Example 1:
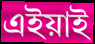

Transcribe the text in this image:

এইয়াই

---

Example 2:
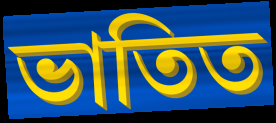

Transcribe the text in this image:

ভাতিত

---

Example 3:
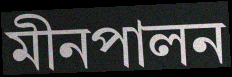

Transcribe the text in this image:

মীনপালন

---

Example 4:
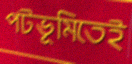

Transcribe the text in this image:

পটভূমিতেই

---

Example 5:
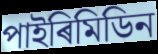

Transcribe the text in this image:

পাইৰিমিডিন